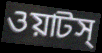
ওয়াটস্